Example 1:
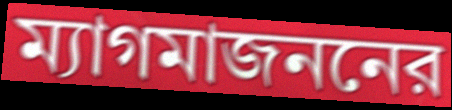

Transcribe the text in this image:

ম্যাগমাজননের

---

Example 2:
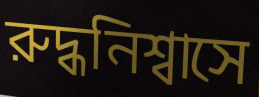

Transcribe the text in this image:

রুদ্ধনিশ্বাসে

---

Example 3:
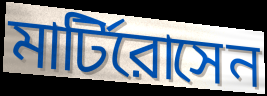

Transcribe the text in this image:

মার্টিরোসেন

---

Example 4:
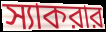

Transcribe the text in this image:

স্যাকরার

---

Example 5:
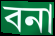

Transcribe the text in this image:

বনা